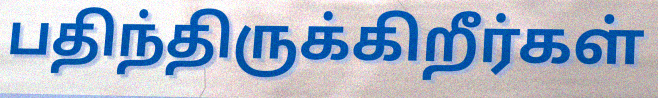
பதிந்திருக்கிறீர்கள்